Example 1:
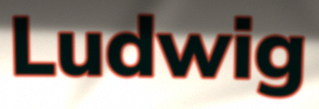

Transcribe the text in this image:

Ludwig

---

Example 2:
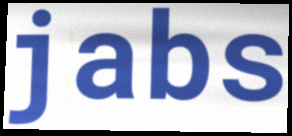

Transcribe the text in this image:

jabs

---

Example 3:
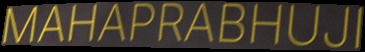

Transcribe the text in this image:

MAHAPRABHUJI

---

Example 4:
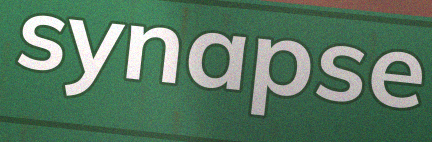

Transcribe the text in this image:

synapse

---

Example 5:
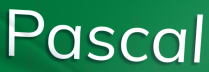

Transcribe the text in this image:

Pascal